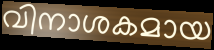
വിനാശകമായ